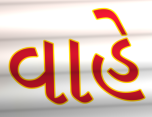
વાહે